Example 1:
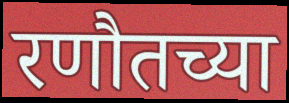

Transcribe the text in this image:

रणौतच्या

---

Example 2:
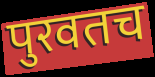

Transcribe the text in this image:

पुरवतच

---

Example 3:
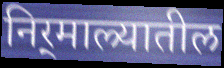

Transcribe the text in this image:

निर्माल्यातील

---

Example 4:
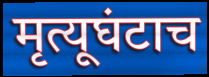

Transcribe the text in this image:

मृत्यूघंटाच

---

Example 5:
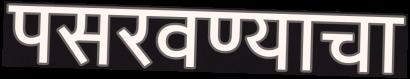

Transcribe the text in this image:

पसरवण्याचा